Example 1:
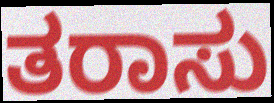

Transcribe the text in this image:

ತರಾಸು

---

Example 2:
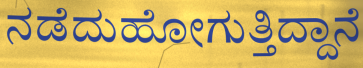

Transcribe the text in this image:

ನಡೆದುಹೋಗುತ್ತಿದ್ದಾನೆ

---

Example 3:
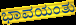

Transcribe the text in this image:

ಭಾವಯಂತು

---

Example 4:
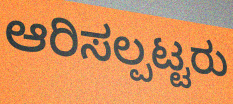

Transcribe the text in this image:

ಆರಿಸಲ್ಪಟ್ಟರು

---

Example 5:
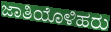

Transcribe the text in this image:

ಜಾತಿಯೊಳಿಹರು